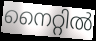
നൈറ്റിൽ